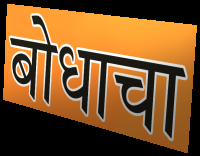
बोधाचा